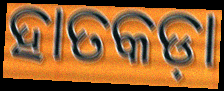
ହାତକଡ଼ା